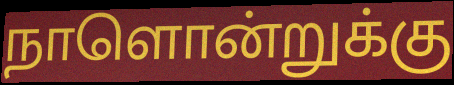
நாளொன்றுக்கு